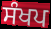
ਸੰਖਪ